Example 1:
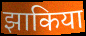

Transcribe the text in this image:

झाकिया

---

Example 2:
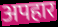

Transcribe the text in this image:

अपहार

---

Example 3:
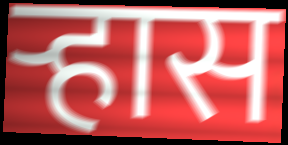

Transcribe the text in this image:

ऱ्हास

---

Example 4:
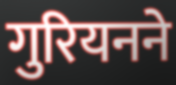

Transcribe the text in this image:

गुरियनने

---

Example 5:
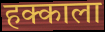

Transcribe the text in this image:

हक्काला